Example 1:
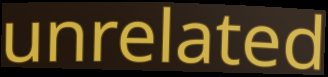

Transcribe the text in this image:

unrelated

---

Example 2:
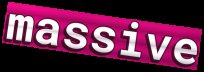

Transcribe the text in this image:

massive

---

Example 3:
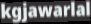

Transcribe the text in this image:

kgjawarlal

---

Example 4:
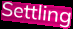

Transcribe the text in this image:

Settling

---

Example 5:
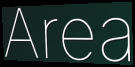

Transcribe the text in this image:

Area